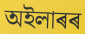
অইলাৰৰ